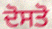
ਦੋਸਤੋ